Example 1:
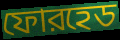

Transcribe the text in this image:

ফোরহেড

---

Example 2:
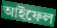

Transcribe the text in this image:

আইফেল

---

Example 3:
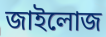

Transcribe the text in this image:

জাইলোজ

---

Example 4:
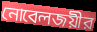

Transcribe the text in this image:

নোবেলজয়ীর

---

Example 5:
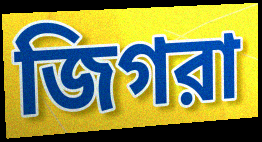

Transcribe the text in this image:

জিগরা